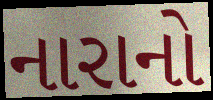
નારાનો